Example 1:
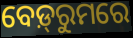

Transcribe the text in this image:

ବେଡ଼୍‌ରୁମରେ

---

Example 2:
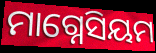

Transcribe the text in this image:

ମାଗ୍ନେସିୟମ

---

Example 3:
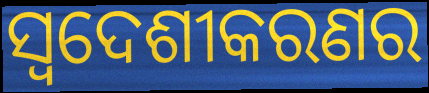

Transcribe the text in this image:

ସ୍ୱଦେଶୀକରଣର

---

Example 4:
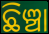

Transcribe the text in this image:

ଛିଞ୍ଚା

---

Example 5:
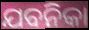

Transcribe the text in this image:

ଯବନିକା